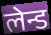
लेन्ड